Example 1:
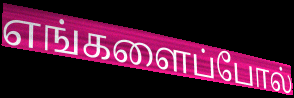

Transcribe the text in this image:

எங்களைப்போல்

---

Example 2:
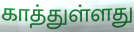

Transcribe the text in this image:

காத்துள்ளது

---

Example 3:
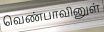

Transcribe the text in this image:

வெண்பாவினுள்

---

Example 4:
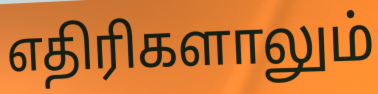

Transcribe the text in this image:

எதிரிகளாலும்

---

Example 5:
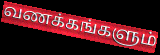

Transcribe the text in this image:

வணக்கங்களும்